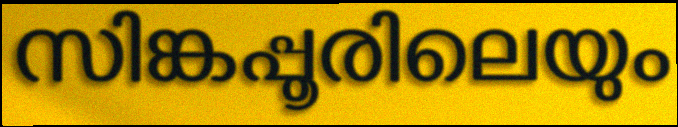
സിങ്കപ്പൂരിലെയും